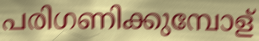
പരിഗണിക്കുമ്പോള്